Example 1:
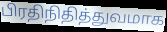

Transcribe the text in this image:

பிரதிநிதித்துவமாக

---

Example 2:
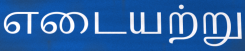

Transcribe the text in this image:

எடையற்று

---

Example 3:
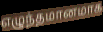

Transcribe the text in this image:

எழுந்தமானமாக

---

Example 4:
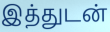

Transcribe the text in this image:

இத்துடன்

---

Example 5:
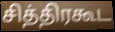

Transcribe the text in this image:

சித்திரகூட